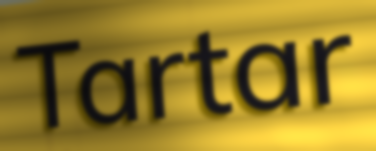
Tartar